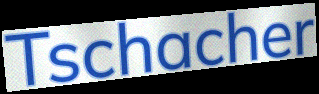
Tschacher